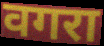
वगरा